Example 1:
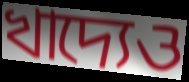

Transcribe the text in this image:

খাদ্যেও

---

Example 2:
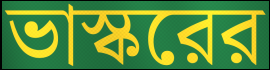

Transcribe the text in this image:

ভাস্করের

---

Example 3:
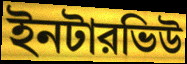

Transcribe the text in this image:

ইনটারভিউ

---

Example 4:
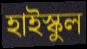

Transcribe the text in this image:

হাইস্কুল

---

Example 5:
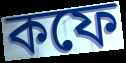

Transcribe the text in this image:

কফে